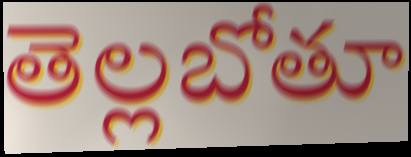
తెల్లబోతూ